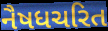
નૈષધચરિત